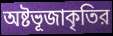
অষ্টভূজাকৃতির